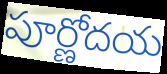
పూర్ణోదయ